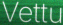
Vettu